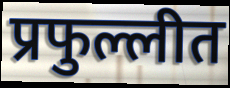
प्रफुल्लीत